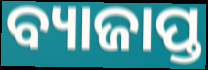
ବ୍ୟାଜାପ୍ତ